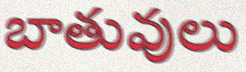
బాతువులు